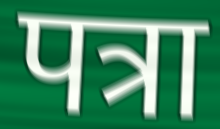
पत्रा